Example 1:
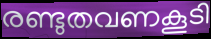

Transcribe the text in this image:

രണ്ടുതവണകൂടി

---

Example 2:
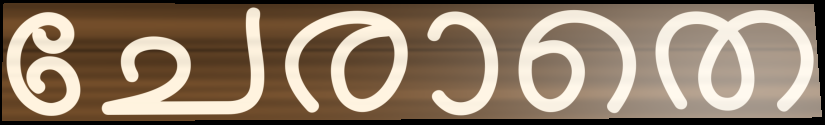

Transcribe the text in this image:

ചേരാതെ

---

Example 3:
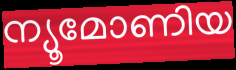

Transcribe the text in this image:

ന്യൂമോണിയ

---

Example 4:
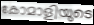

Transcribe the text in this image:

കോമാളിയുടെ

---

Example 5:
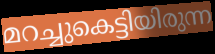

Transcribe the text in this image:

മറച്ചുകെട്ടിയിരുന്ന